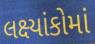
લક્ષ્યાંકોમાં